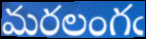
మరలంగఁ